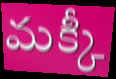
మక్కీ